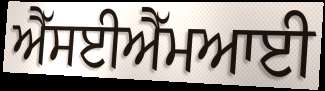
ਐੱਸਈਐੱਮਆਈ